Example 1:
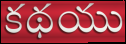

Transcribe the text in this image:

కథయు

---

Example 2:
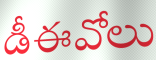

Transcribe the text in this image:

డీఈవోలు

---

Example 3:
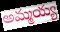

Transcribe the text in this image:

అమ్మయ్య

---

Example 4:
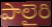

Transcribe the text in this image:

పాలైరి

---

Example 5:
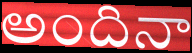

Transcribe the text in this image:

అందినా